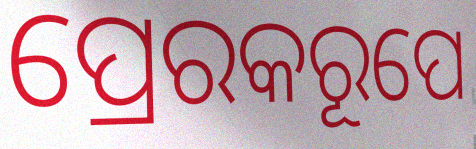
ପ୍ରେରକରୂପେ